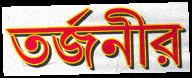
তর্জনীর